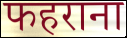
फहराना